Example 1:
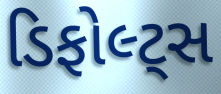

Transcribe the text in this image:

ડિફોલ્ટ્સ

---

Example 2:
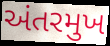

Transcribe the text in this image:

અંતરમુખ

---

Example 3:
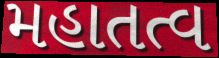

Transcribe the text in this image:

મહાતત્વ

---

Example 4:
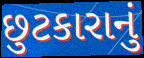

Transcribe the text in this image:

છુટકારાનું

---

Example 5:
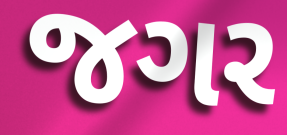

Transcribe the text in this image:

જગર